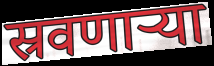
स्रवणाऱ्या